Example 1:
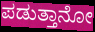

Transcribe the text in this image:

ಪಡುತ್ತಾನೋ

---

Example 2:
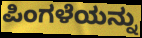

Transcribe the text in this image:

ಪಿಂಗಳೆಯನ್ನು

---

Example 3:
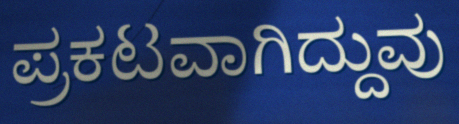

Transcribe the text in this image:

ಪ್ರಕಟವಾಗಿದ್ದುವು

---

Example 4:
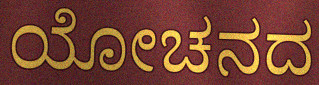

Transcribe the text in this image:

ಯೋಚನದ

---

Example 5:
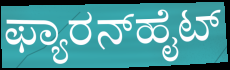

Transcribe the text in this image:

ಫ್ಯಾರನ್‌ಹೈಟ್